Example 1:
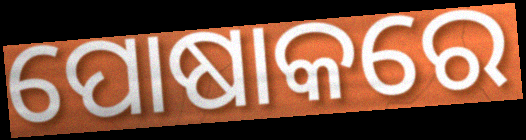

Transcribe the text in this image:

ପୋଷାକରେ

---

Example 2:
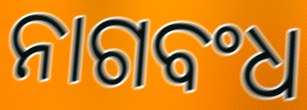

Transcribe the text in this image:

ନାଗବଂଧ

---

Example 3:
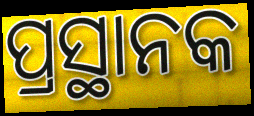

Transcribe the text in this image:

ପ୍ରସ୍ଥାନକ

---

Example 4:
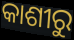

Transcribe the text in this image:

କାଶୀରୁ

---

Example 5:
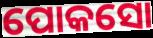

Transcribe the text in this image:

ପୋକସୋ